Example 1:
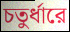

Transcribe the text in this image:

চতুর্ধারে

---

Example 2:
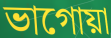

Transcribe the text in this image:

ভাগোয়া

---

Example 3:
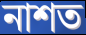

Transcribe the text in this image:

নাশত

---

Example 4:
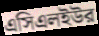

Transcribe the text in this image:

এসিএলইউর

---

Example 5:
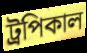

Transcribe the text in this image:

ট্রপিকাল